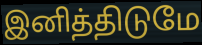
இனித்திடுமே